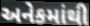
અનેકમાંથી